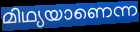
മിഥ്യയാണെന്ന